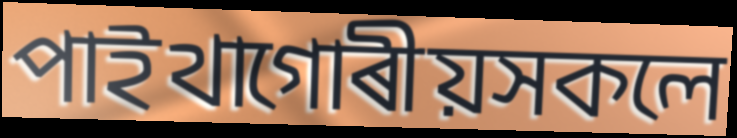
পাইথাগোৰীয়সকলে